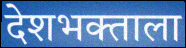
देशभक्ताला